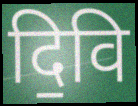
दि॒वि